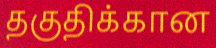
தகுதிக்கான